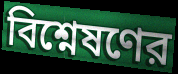
বিশ্নেষণের